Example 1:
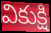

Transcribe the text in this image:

వికుక్షి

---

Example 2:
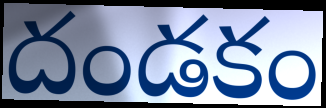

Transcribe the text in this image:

దండకం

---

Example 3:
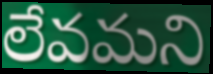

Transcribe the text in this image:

లేవమని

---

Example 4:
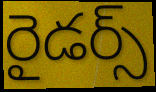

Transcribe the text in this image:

రైడర్స్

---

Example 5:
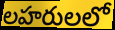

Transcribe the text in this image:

లహరులలో